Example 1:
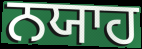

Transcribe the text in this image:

ਨਯਾਹ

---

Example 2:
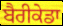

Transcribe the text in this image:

ਬੈਰੀਕੇਡਾ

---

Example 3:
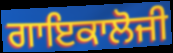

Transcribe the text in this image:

ਗਾਇਕਾਲੋਜੀ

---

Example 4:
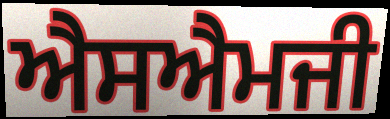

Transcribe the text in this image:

ਐਸਐਮਜੀ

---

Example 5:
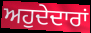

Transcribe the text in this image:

ਅਹੁਦੇਦਾਰਾਂ